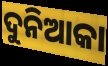
ଦୁନିଆକା